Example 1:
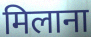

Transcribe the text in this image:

मिलाना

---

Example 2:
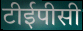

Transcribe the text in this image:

टीईपीसी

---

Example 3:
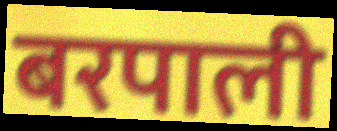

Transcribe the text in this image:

बरपाली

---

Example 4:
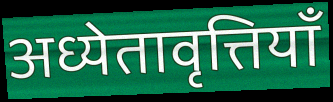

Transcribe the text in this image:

अध्येतावृत्तियाँ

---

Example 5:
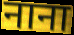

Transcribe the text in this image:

नाना